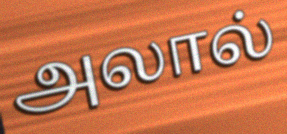
அலால்